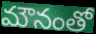
మౌనంతో